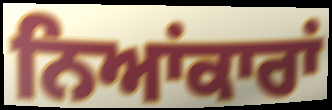
ਨਿਆਂਕਾਰਾਂ